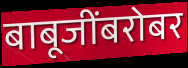
बाबूजींबरोबर